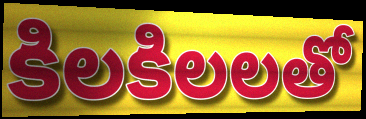
కిలకిలలతో